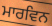
ਮਾਰਵਿਨ